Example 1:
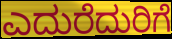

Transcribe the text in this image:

ಎದುರೆದುರಿಗೆ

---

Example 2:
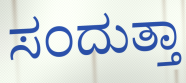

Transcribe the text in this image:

ಸಂದುತ್ತಾ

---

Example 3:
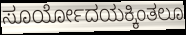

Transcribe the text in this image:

ಸೂರ್ಯೋದಯಕ್ಕಿಂತಲೂ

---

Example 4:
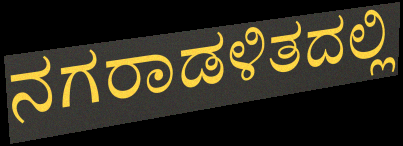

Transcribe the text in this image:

ನಗರಾಡಳಿತದಲ್ಲಿ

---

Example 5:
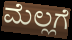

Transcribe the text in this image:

ಮೆಲ್ಲಗೆ